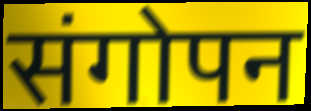
संगोपन